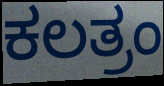
ಕಲತ್ರಂ